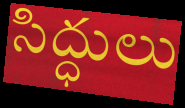
సిద్ధులు